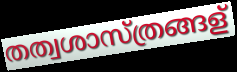
തത്വശാസ്ത്രങ്ങള്